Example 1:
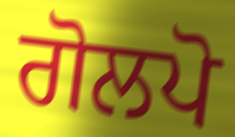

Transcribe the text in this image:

ਗੋਲਪੋ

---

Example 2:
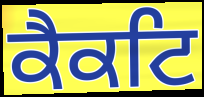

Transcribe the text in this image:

ਕੈਕਟਿ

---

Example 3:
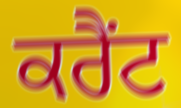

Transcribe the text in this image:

ਕਰੈਂਟ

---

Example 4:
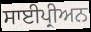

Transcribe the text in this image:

ਸਾਈਪ੍ਰੀਅਨ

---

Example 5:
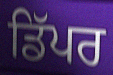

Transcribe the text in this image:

ਡਿੱਪਰ